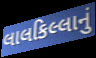
લાલકિલ્લાનું